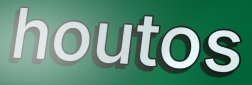
houtos